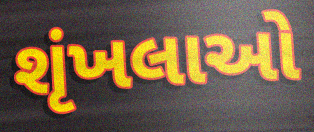
શૃંખલાઓ